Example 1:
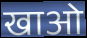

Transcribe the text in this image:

खाओ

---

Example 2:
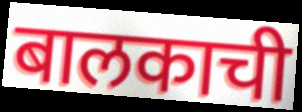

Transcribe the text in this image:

बालकाची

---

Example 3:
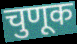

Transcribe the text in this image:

चुणूक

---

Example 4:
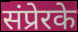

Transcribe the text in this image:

संप्रेरके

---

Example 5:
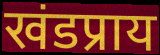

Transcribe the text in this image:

खंडप्राय